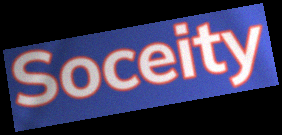
Soceity